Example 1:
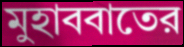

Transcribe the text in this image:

মুহাববাতের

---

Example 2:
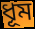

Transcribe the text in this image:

ধূম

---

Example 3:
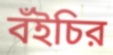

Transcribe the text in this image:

বঁইচির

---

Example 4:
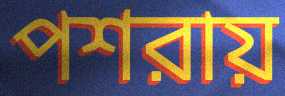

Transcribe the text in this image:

পশরায়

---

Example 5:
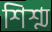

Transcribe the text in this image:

শিশ্ম